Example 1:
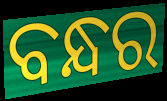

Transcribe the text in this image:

ବନ୍ଧର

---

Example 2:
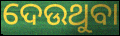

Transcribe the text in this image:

ଦେଉଥୁବା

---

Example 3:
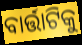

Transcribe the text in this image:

ବାର୍ତ୍ତାଟିକୁ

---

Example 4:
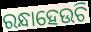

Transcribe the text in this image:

ରନ୍ଧାହେଉଚି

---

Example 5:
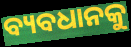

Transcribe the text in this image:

ବ୍ୟବଧାନକୁ